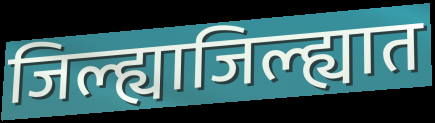
जिल्ह्याजिल्ह्यात